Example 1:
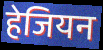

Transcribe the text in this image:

हेजियन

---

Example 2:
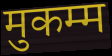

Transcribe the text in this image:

मुकम्म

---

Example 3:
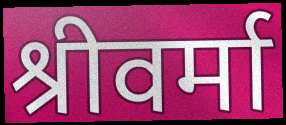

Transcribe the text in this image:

श्रीवर्मा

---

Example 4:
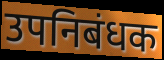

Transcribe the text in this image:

उपनिबंधक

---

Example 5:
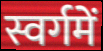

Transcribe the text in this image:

स्वर्गमें